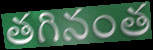
తగినంత